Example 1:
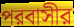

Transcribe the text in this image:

পরবাসীর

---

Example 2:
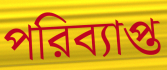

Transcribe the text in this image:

পরিব্যাপ্ত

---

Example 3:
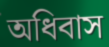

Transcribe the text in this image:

অধিবাস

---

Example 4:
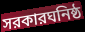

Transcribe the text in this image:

সরকারঘনিষ্ঠ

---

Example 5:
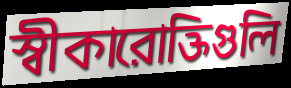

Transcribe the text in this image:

স্বীকারোক্তিগুলি